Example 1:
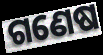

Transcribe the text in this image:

ଗଣେଷ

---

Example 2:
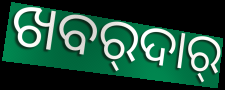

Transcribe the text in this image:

ଖବର୍‍ଦାର୍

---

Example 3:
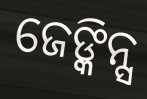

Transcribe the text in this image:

ଜେଙ୍କିନ୍ସ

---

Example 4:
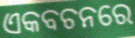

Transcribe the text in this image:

ଏକବଚନରେ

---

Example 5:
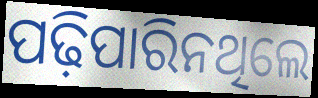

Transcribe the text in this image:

ପଢ଼ିପାରିନଥିଲେ